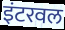
इंटरवल